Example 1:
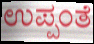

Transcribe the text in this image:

ಉಪ್ಪಂತೆ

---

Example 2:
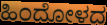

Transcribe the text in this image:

ಹಿಂದೋಳದ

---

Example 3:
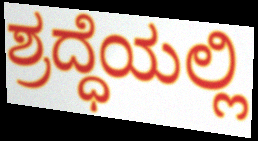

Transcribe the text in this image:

ಶ್ರದ್ಧೆಯಲ್ಲಿ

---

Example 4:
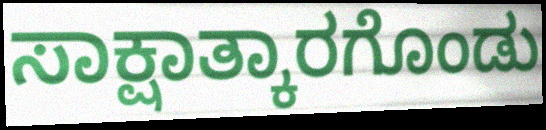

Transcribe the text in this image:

ಸಾಕ್ಷಾತ್ಕಾರಗೊಂಡು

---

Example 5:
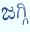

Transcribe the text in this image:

ಜಗ್ಗಿ